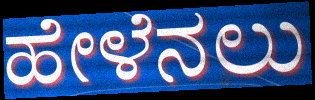
ಹೇಳೆನಲು